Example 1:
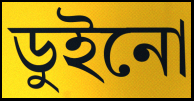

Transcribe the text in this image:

ডুইনো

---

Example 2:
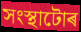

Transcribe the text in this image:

সংস্থাটোৰ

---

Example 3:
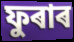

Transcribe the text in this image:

ফুৰাৰ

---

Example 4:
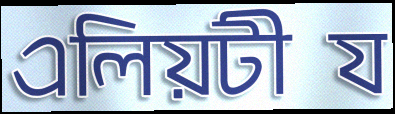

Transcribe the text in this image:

এলিয়টীয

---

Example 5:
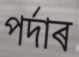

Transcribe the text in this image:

পৰ্দাৰ